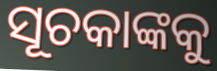
ସୂଚକାଙ୍କକୁ